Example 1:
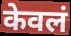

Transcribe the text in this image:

केवलं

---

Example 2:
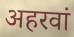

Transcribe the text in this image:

अहरवां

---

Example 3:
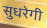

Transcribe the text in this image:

सुधरेगी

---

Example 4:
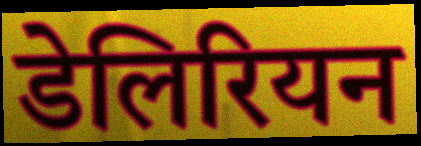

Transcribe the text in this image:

डेलिरियन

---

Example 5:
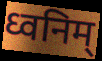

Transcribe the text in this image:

ध्वनिम्